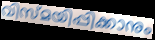
വിസ്മയിപ്പിക്കാനും